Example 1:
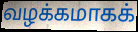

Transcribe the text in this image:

வழக்கமாகக்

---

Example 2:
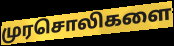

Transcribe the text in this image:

முரசொலிகளை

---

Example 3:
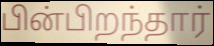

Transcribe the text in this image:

பின்பிறந்தார்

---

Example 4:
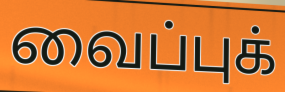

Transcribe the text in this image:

வைப்புக்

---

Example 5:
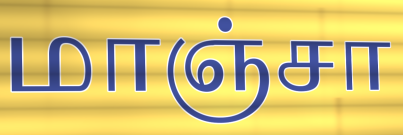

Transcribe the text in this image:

மாஞ்சா